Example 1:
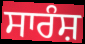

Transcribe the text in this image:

ਸਾਰੰਸ਼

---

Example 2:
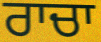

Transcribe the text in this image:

ਰਾਚਾ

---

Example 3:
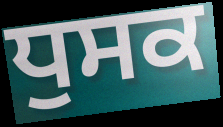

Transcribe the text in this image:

ਧੁਸਕ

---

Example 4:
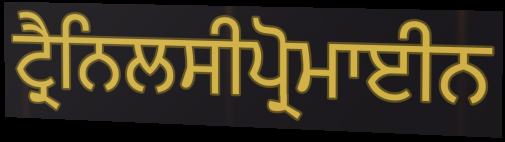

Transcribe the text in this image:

ਟ੍ਰੈਨਿਲਸੀਪ੍ਰੋਮਾਈਨ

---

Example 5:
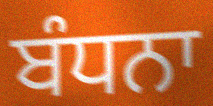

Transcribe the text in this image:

ਬੰਧਨਾ